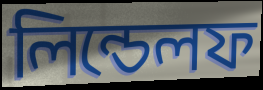
লিন্ডেলফ